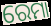
ରେମା